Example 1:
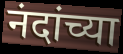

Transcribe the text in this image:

नंदांच्या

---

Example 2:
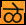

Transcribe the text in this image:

ळे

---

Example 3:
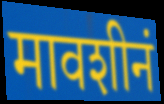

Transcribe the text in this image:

मावशीनं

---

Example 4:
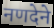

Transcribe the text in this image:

नणदेने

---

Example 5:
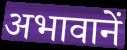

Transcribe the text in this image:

अभावानें